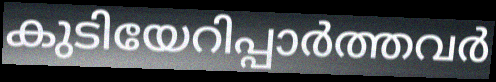
കുടിയേറിപ്പാർത്തവർ